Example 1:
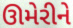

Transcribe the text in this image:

ઊમેરીને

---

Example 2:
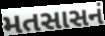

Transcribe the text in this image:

મતસાસનં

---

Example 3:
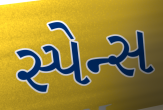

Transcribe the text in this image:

સ્પેન્સ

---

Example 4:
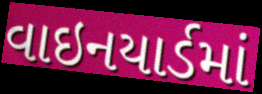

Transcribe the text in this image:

વાઇનયાર્ડમાં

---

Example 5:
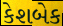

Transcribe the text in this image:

કેશબેક